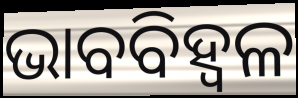
ଭାବବିହ୍ବଳ